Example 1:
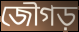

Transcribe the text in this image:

জৌগড়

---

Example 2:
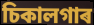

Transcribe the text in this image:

চিকালগাৰ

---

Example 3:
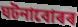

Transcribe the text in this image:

ঘটনাবোৰৰ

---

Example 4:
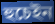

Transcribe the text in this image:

হুচেইন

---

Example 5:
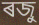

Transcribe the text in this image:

ৰজু